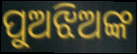
ପୁଅଝିଅଙ୍କ